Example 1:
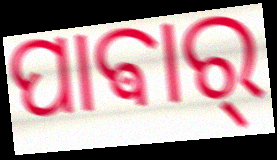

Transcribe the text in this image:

ପାଵାର୍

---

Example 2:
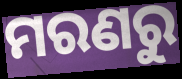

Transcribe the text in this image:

ମରଣରୁ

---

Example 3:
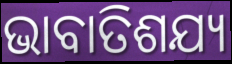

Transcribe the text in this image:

ଭାବାତିଶଯ୍ୟ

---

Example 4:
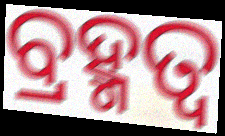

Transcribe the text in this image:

ବ୍ରହ୍ମତ୍ୱ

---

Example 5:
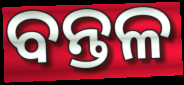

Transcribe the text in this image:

ବନ୍ତଳ